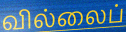
வில்லைப்